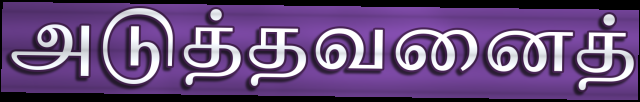
அடுத்தவனைத்